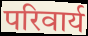
परिवार्य